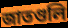
জাতগুলি